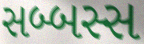
સબ્બસ્સ